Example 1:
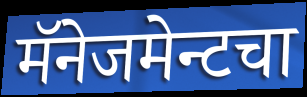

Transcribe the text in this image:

मॅनेजमेन्टचा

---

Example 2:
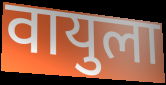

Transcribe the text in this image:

वायुला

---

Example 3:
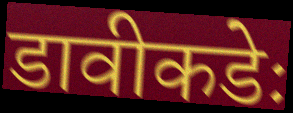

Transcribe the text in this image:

डावीकडेः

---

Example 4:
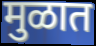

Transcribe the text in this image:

मुळात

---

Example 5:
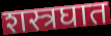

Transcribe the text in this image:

शस्त्रघात